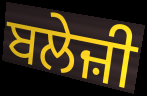
ਬਲੇਜ਼ੀ